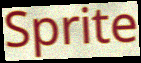
Sprite